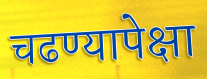
चढण्यापेक्षा